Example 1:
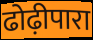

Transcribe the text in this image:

ढोढ़ीपारा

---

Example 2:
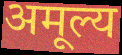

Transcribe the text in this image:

अमूल्य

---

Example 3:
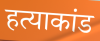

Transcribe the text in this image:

हत्याकांड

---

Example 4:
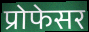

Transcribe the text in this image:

प्रोफेसर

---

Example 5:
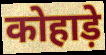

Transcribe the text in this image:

कोहाड़े